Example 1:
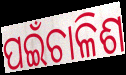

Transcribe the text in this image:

ପଇଁଚାଳିଶ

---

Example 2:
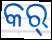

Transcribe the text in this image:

କର୍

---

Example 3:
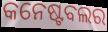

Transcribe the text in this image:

କନେଷ୍ଟବଲର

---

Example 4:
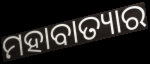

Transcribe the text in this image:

ମହାବାତ୍ୟାର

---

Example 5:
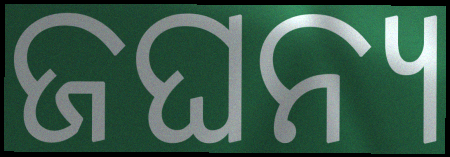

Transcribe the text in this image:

ଜଘନ୍ଯ